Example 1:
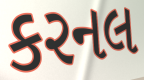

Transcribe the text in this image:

કરનલ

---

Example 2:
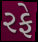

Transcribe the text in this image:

રફે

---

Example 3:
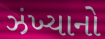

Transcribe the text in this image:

ઝંખ્યાનો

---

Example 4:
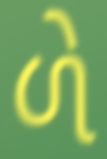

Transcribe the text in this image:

ળે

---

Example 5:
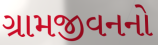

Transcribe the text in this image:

ગ્રામજીવનનો